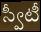
స్వీటీ